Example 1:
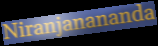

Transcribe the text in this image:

Niranjanananda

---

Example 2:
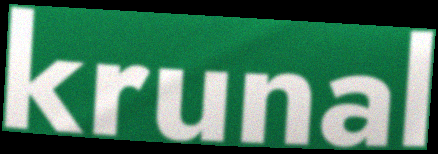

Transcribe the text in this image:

krunal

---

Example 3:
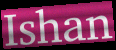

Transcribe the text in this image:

Ishan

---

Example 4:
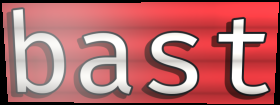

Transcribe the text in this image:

bast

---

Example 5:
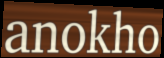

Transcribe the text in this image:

anokho